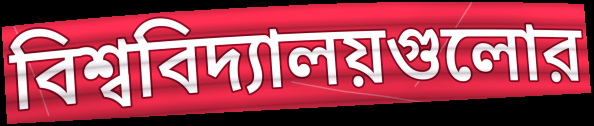
বিশ্ববিদ্যালয়গুলোর